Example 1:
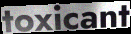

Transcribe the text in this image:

toxicant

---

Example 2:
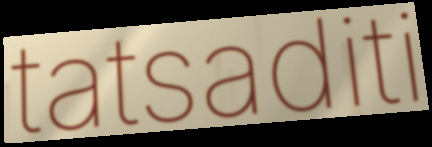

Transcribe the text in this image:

tatsaditi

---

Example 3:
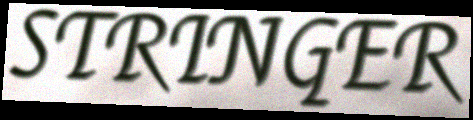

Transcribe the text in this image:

STRINGER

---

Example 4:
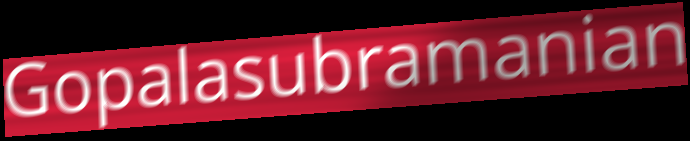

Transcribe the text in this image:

Gopalasubramanian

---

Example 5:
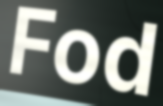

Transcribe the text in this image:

Fod